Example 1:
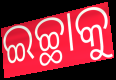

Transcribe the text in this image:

ଇଚ୍ଛାକୁ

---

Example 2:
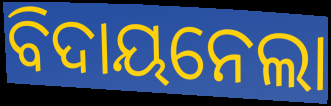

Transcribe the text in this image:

ବିଦାୟନେଲା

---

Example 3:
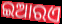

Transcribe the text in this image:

ଇଆରଏ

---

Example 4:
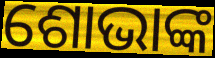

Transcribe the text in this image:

ଶୋଭାଙ୍କ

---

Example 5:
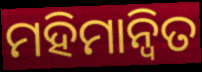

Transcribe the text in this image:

ମହିମାନ୍ଵିତ